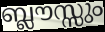
ബ്ലൗസ്സും